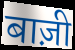
बाज़ी